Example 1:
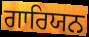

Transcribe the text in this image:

ਗਾਰਿਯਨ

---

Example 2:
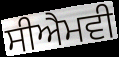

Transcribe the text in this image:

ਸੀਐਮਵੀ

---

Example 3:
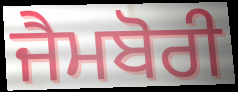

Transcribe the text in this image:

ਜੈਮਬੋਰੀ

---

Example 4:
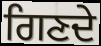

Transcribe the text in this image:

ਗਿਣਦੇ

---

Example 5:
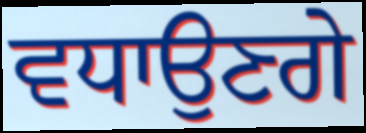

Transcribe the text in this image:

ਵਧਾਉਣਗੇ